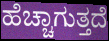
ಹೆಚ್ಚಾಗುತ್ತದೆ